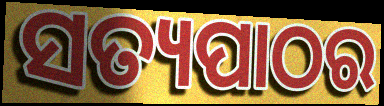
ସତ୍ୟପାଠର